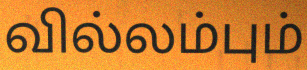
வில்லம்பும்